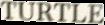
TURTLE